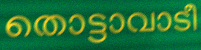
തൊട്ടാവാടീ